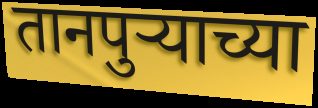
तानपुऱ्याच्या